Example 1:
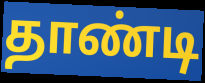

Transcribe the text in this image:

தாண்டி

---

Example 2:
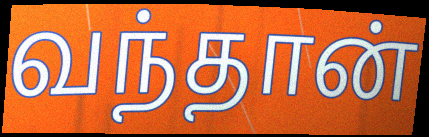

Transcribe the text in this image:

வந்தான்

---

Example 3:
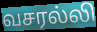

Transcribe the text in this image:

வசரல்லி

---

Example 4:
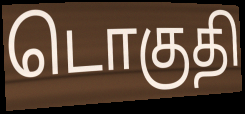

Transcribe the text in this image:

டொகுதி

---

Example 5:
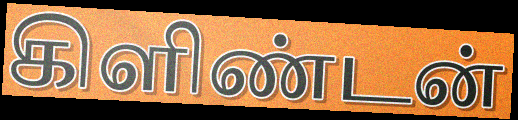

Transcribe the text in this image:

கிளிண்டன்